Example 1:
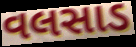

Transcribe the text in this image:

વલસાડ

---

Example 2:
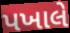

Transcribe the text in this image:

પખાલે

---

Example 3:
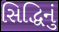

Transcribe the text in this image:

સિદ્ધિનું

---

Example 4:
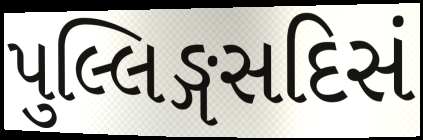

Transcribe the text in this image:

પુલ્લિઙ્ગસદિસં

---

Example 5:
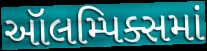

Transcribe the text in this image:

ઑલમ્પિક્સમાં